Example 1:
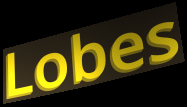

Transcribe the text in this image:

Lobes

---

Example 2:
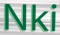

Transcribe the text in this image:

Nki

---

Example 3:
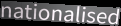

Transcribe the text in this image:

nationalised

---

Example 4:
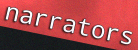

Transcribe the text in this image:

narrators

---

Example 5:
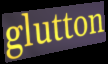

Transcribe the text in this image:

glutton